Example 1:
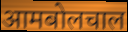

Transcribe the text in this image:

आमबोलचाल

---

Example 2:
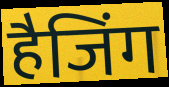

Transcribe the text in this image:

हैजिंग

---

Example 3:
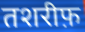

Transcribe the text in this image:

तशरीफ़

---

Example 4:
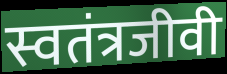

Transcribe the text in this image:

स्वतंत्रजीवी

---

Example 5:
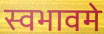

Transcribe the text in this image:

स्वभावमे